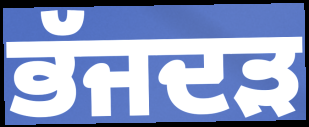
ਭੱਜਦੜ